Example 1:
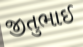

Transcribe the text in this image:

જીતુભાઈ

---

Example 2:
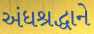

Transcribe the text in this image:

અંધશ્રદ્ધાને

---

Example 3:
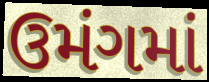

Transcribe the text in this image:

ઉમંગમાં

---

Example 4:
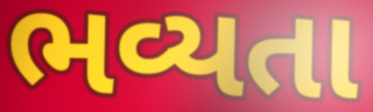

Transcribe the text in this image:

ભવ્યતા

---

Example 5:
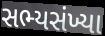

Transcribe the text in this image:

સભ્યસંખ્યા